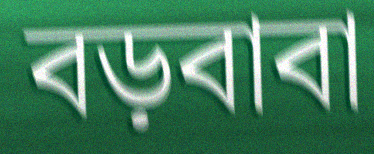
বড়বাবা